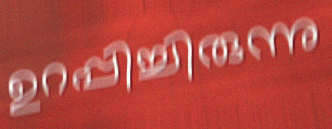
ഉറപ്പിച്ചിരുന്നു